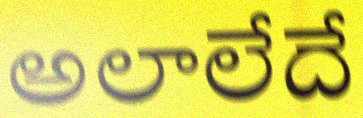
అలాలేదే